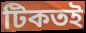
টিকতই